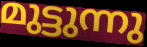
മുട്ടുന്നു